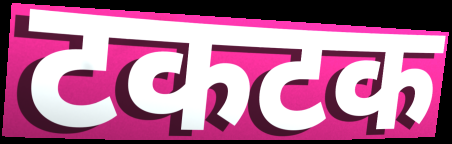
टकटक